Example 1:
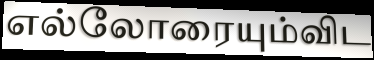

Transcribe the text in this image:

எல்லோரையும்விட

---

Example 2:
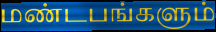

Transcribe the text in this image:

மண்டபங்களும்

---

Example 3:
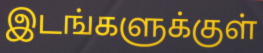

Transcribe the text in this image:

இடங்களுக்குள்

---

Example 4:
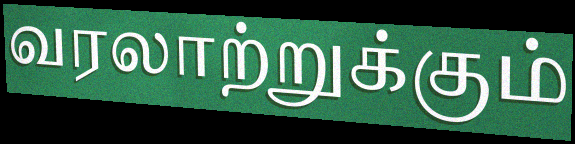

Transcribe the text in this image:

வரலாற்றுக்கும்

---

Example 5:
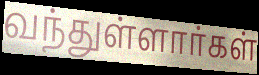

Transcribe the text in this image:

வந்துள்ளார்கள்